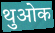
थुओक